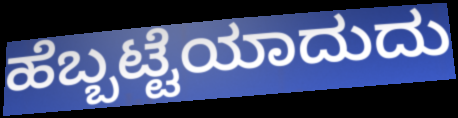
ಹೆಬ್ಬಟ್ಟೆಯಾದುದು